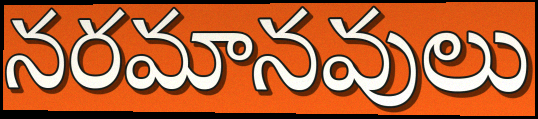
నరమానవులు